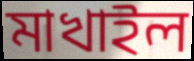
মাখাইল